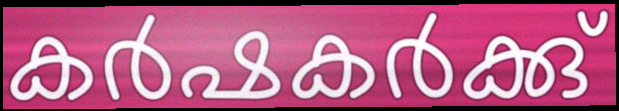
കർഷകർക്കു്